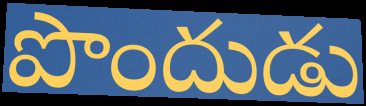
పొందుడు